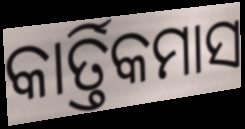
କାର୍ତ୍ତିକମାସ